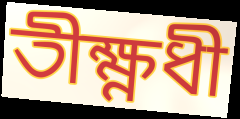
তীক্ষ্ণধী